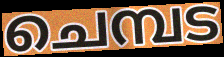
ചെമ്പട